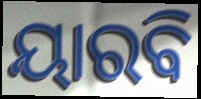
ୟାରବି